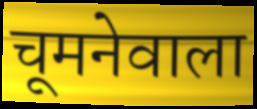
चूमनेवाला